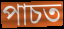
পাচত